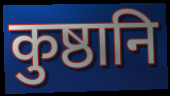
कुष्ठानि